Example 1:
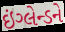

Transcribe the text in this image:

ઇંગ્લેન્ડને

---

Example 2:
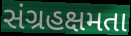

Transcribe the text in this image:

સંગ્રહક્ષમતા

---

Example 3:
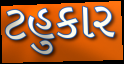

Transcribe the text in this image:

ટહુકાર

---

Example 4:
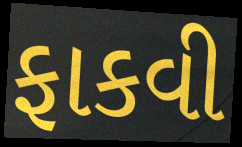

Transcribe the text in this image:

ફાકવી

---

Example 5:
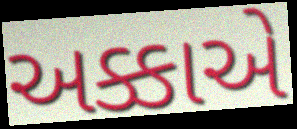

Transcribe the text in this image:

અક્કાએ